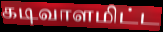
கடிவாளமிட்ட